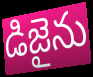
డిజైను